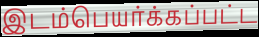
இடம்பெயர்க்கப்பட்ட